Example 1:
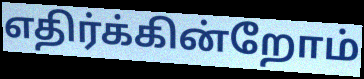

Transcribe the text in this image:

எதிர்க்கின்றோம்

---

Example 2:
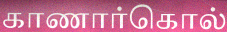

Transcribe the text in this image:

காணார்கொல்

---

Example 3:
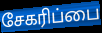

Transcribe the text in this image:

சேகரிப்பை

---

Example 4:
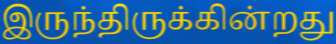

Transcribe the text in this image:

இருந்திருக்கின்றது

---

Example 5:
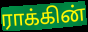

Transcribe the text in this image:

ராக்கின்